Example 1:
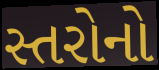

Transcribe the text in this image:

સ્તરોનો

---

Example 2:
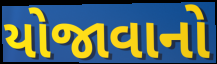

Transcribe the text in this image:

યોજાવાનો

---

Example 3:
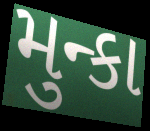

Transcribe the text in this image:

મુન્કા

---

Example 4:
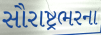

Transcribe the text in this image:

સૌરાષ્ટ્રભરના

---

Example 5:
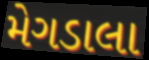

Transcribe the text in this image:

મેગડાલા